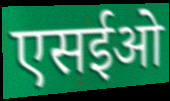
एसईओ